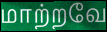
மாற்றவே